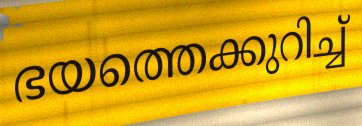
ഭയത്തെക്കുറിച്ച്